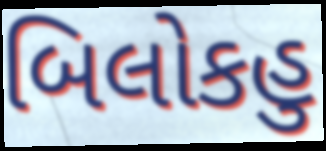
બિલોકહુ